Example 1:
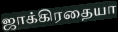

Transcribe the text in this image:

ஜாக்கிரதையா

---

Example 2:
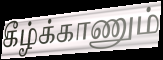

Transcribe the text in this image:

கீழ்க்காணும்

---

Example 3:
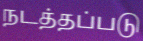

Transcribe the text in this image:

நடத்தப்படு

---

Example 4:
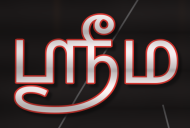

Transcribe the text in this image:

ஶ்ரீம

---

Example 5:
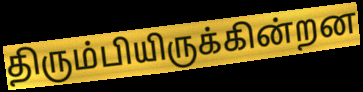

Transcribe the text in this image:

திரும்பியிருக்கின்றன